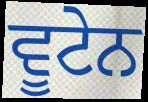
ਵੂਟੇਨ